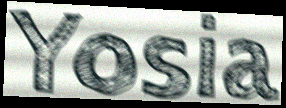
Yosia